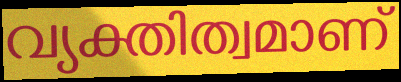
വ്യക്തിത്വമാണ്